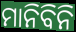
ମାନିବିନି